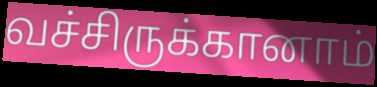
வச்சிருக்கானாம்